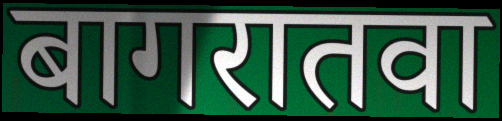
बागरातवा